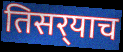
तिसर्‍याच